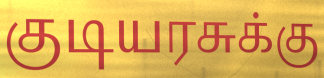
குடியரசுக்கு